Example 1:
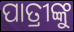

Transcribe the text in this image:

ପାତ୍ରୀଙ୍କୁ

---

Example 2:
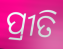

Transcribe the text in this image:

ପ୍ରୀତି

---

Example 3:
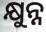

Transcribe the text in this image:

କ୍ଷୁନ୍ନ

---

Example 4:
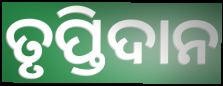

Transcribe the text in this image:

ତୃପ୍ତିଦାନ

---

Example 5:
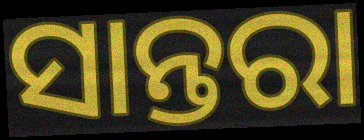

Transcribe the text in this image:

ସାନ୍ତରା